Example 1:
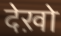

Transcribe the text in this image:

देख़ो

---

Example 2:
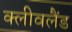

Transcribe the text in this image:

क्‍लीवलैंड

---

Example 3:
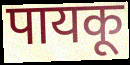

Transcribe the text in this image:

पायकू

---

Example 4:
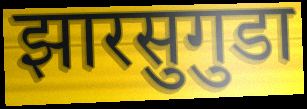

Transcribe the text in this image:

झारसुगुडा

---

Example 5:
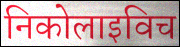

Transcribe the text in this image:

निकोलाइविच